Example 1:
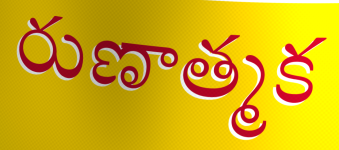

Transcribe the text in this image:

రుణాత్మక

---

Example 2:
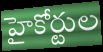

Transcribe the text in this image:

హైకోర్టుల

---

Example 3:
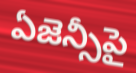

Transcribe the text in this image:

ఏజెన్సీపై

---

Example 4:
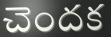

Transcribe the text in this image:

చెందక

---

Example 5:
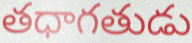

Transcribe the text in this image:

తధాగతుడు